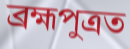
ব্ৰহ্মপুত্ৰত